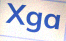
Xga